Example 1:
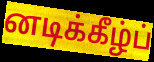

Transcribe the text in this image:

னடிக்கீழ்ப்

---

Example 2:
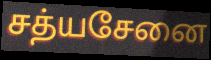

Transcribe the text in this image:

சத்யசேனை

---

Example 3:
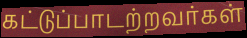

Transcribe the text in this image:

கட்டுப்பாடற்றவர்கள்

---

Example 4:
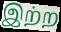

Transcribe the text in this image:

இற்ற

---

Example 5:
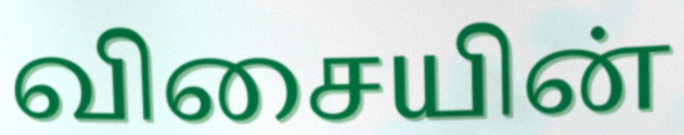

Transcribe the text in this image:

விசையின்